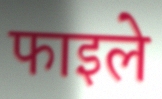
फाइले